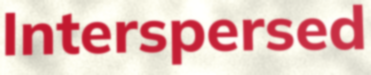
Interspersed